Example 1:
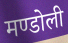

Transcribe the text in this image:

मण्डोली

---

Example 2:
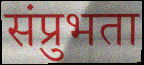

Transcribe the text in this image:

संप्रुभता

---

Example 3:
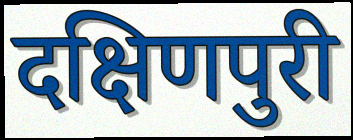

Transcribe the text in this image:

दक्षिणपुरी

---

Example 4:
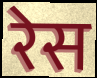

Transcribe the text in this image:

रेस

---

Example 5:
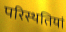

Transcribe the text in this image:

परिस्थतियां